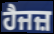
ਹੈਜਜ਼